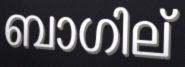
ബാഗില്